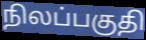
நிலப்பகுதி